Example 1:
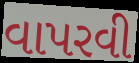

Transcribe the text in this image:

વાપરવી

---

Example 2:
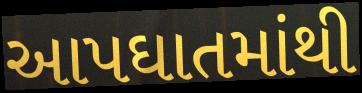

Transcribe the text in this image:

આપઘાતમાંથી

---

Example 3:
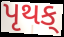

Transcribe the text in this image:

પૃથક્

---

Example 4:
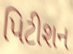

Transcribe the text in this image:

પિટીશન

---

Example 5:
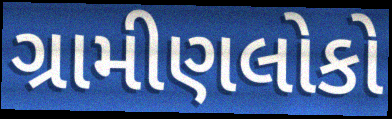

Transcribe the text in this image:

ગ્રામીણલોકો